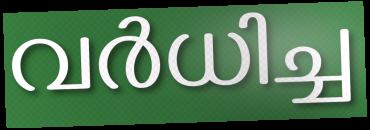
വർധിച്ച